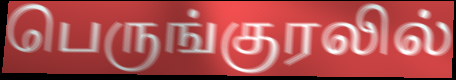
பெருங்குரலில்